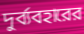
দুর্ব্যবহারের